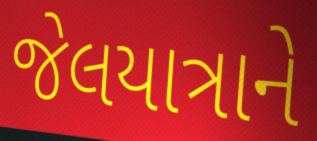
જેલયાત્રાને